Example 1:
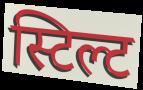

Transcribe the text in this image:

स्टिल्ट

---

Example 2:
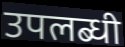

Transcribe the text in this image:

उपलब्धी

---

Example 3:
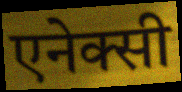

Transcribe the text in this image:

एनेक्‍सी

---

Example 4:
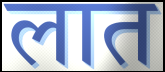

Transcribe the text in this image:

लात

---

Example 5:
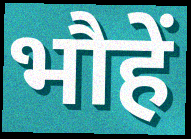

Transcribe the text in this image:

भौहें